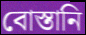
বোস্তানি